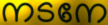
നടനേ